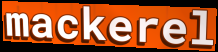
mackerel